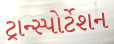
ટ્રાન્સ્પોર્ટેશન